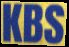
KBS